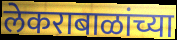
लेकराबाळांच्या